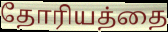
தோரியத்தை